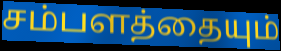
சம்பளத்தையும்